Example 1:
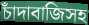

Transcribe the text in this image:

চাঁদাবাজিসহ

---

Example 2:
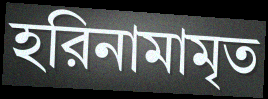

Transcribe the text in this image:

হরিনামামৃত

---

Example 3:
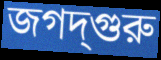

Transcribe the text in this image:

জগদ্‌গুরু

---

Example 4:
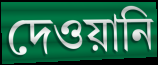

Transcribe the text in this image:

দেওয়ানি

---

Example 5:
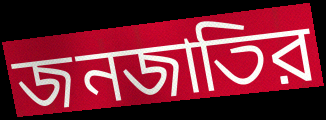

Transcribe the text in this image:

জনজাতির